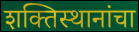
शक्तिस्थानांचा